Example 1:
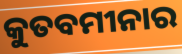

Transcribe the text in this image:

କୁତବମୀନାର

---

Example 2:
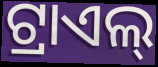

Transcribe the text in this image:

ଟ୍ରାଏଲ୍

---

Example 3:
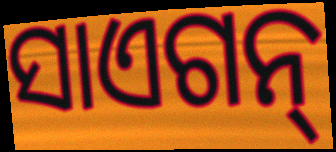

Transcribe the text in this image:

ସାଏଗନ୍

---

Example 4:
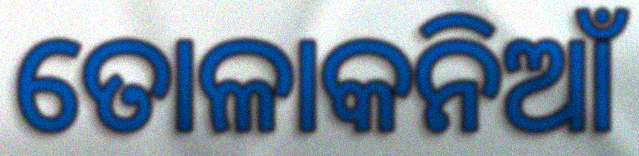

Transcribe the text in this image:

ତୋଳାକନିଆଁ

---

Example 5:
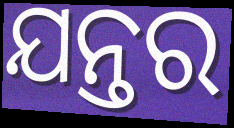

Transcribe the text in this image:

ଯନ୍ତର